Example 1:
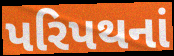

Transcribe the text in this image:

પરિપથનાં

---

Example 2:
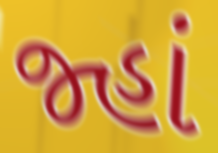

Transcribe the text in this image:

જ્હાં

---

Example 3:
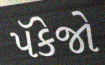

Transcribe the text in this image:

પૅકેજો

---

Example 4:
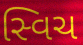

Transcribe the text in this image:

સ્વિચ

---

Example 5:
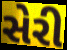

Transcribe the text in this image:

સેરી